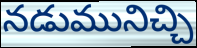
నడుమునిచ్చి